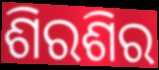
ଶିରଶିର